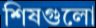
শিষগুলো